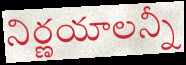
నిర్ణయాలన్నీ